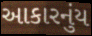
આકારનુંય